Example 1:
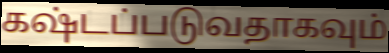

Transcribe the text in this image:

கஷ்டப்படுவதாகவும்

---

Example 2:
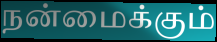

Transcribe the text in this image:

நன்மைக்கும்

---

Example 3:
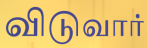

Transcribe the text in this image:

விடுவார்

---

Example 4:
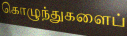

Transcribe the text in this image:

கொழுந்துகளைப்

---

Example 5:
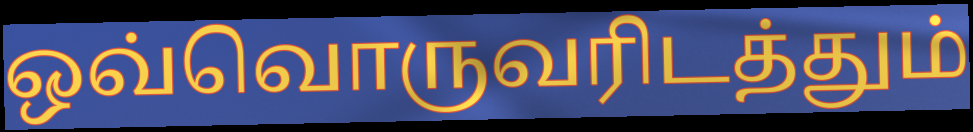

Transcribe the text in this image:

ஒவ்வொருவரிடத்தும்